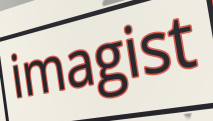
imagist